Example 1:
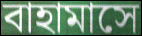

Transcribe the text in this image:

বাহামাসে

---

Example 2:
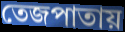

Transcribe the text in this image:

তেজপাতায়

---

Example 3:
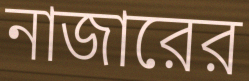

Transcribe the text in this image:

নাজারের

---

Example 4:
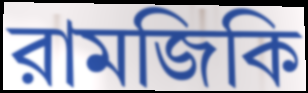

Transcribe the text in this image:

রামজিকি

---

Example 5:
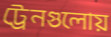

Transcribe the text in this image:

ট্রেনগুলোয়